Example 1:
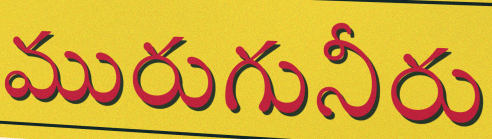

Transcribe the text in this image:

మురుగునీరు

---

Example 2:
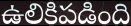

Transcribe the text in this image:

ఉలికిపడింది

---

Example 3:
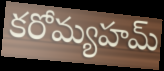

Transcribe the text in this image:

కరోమ్యహమ్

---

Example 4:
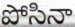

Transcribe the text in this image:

పోసినా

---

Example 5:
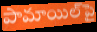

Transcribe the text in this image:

పామాయిల్‌పై